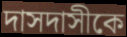
দাসদাসীকে